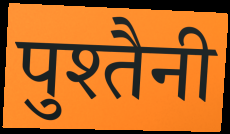
पुश्‍तैनी